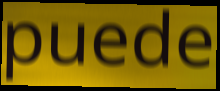
puede